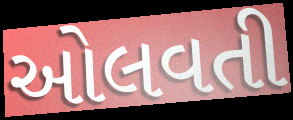
ઓલવતી